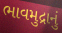
ભાવમુદ્રાનું